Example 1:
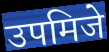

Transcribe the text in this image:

उपमिजे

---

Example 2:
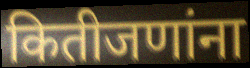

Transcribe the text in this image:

कितीजणांना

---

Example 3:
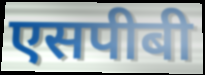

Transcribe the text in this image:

एसपीबी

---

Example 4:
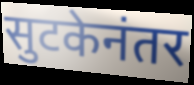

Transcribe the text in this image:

सुटकेनंतर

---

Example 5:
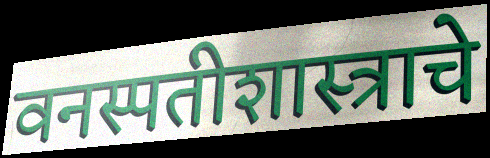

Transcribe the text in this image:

वनस्पतीशास्त्राचे